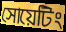
সোয়েটিং